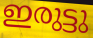
ഇരുട്ടു